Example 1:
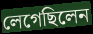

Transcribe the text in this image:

লেগেছিলেন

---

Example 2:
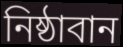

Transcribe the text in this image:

নিষ্ঠাবান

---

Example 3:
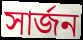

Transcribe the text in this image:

সার্জন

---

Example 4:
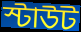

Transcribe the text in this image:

স্টাউট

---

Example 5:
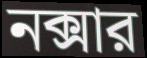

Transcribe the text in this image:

নক্সার